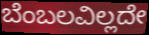
ಬೆಂಬಲವಿಲ್ಲದೇ